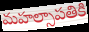
మహల్సాపతికి